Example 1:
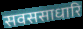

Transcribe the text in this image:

सवससाधारि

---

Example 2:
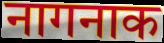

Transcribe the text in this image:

नागनाक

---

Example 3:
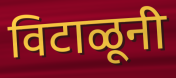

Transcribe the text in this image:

विटाळूनी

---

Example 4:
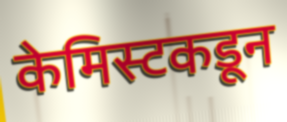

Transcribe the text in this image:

केमिस्टकडून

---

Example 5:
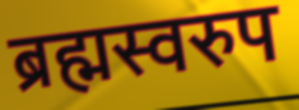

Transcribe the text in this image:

ब्रह्मस्वरुप